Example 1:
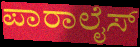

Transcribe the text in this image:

ಪಾರಾಲೈಸ್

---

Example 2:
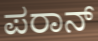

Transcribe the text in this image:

ಪರಾನ್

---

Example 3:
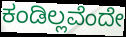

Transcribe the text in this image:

ಕಂಡಿಲ್ಲವೆಂದೇ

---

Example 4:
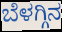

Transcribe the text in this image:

ಬೆಳಗ್ಗಿನ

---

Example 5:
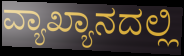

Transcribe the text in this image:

ವ್ಯಾಖ್ಯಾನದಲ್ಲಿ